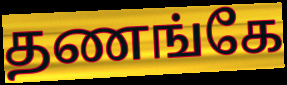
தணங்கே